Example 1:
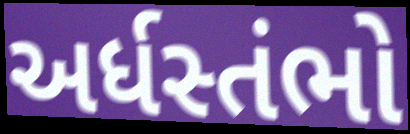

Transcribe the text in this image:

અર્ધસ્તંભો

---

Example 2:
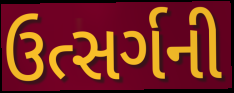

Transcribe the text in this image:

ઉત્સર્ગની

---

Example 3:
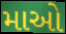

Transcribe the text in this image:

માઓ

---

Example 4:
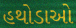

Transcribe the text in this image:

હથોડાઓ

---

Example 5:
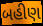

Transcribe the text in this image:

બહીણ